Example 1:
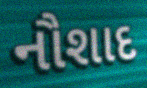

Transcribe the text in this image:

નૌશાદ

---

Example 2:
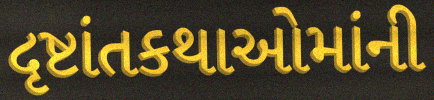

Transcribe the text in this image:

દૃષ્ટાંતકથાઓમાંની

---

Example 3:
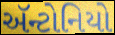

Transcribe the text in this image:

ઍન્ટોનિયો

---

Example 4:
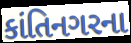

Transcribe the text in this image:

કાંતિનગરના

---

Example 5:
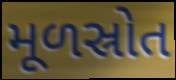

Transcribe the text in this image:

મૂળસ્રોત